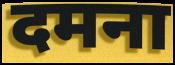
दमना